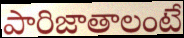
పారిజాతాలంటే